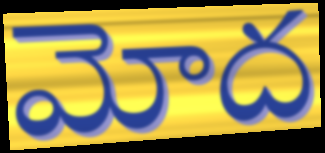
మోద